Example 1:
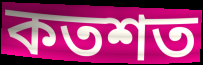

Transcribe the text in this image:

কতশত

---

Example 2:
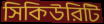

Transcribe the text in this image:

সিকিউরিটি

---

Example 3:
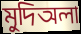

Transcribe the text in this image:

মুদিঅলা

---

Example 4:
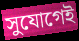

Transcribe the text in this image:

সুযোগেই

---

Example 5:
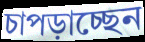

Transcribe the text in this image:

চাপড়াচ্ছেন